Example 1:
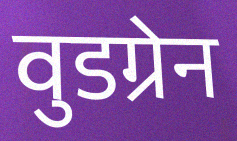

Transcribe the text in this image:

वुडग्रेन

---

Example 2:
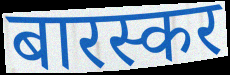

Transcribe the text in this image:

बारस्कर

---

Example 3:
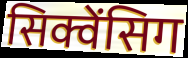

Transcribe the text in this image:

सिक्वेंसिग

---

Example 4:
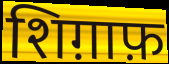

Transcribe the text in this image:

शिग़ाफ़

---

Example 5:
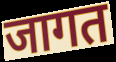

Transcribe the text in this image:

जागत